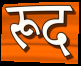
रूद